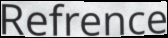
Refrence